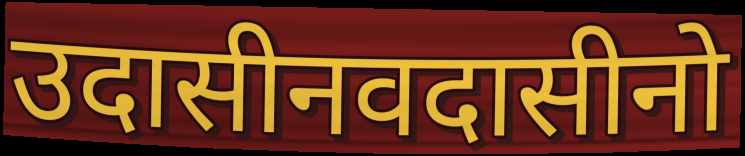
उदासीनवदासीनो